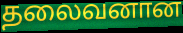
தலைவனான